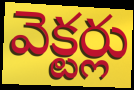
వెక్టర్లు